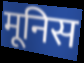
मूनिस